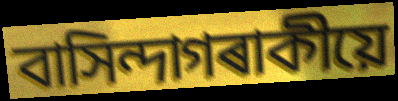
বাসিন্দাগৰাকীয়ে